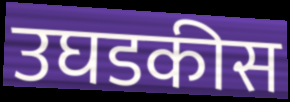
उघडकीस